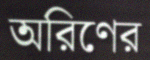
অরিণের